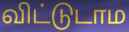
விட்டுடாம